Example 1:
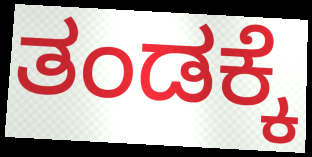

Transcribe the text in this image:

ತಂಡಕ್ಕೆ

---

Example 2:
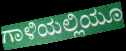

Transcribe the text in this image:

ಗಾಳಿಯಲ್ಲಿಯೂ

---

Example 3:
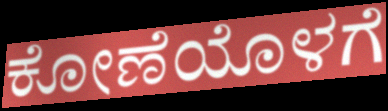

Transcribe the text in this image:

ಕೋಣೆಯೊಳಗೆ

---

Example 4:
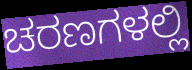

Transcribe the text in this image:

ಚರಣಗಳಲ್ಲಿ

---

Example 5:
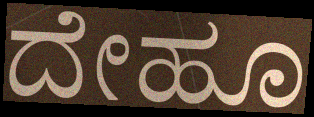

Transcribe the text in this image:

ದೇಹೂ